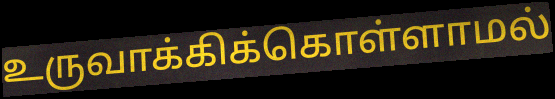
உருவாக்கிக்கொள்ளாமல்